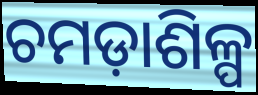
ଚମଡ଼ାଶିଳ୍ପ